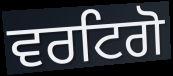
ਵਰਟਿਗੋ